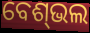
ବେଶ୍‌ଭଲ